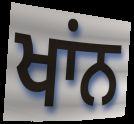
ਖਾਂਨ